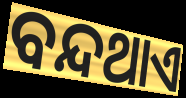
ବନ୍ଦଥାଏ